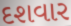
દશવાર